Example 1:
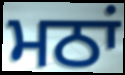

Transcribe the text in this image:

ਮਠਾਂ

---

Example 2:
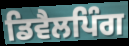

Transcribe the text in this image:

ਡਿਵੈਲਪਿੰਗ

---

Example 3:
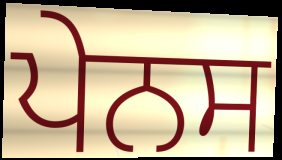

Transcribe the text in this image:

ਪੇਨਸ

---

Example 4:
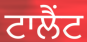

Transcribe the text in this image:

ਟਾਲੈਂਟ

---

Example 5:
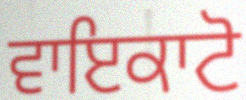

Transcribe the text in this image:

ਵਾਇਕਾਟੋ